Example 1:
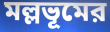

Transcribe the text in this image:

মল্লভূমের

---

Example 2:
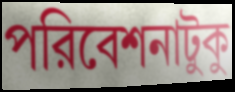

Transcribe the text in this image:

পরিবেশনাটুকু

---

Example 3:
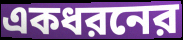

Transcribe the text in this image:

একধরনের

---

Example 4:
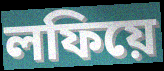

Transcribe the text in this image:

লফিয়ে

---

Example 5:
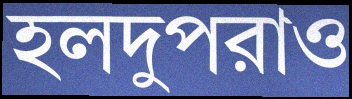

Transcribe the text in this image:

হলদুপরাও